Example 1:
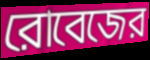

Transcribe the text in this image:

রোবেজের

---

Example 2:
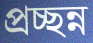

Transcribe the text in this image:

প্রচ্ছন্ন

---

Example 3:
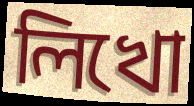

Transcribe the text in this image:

লিখো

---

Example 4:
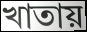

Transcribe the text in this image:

খাতায়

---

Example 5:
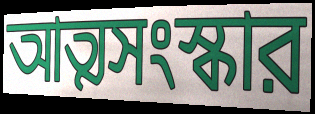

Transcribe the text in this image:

আত্মসংস্কার